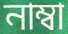
নাম্বা